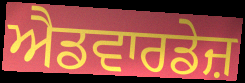
ਐਡਵਾਰਡੇਜ਼